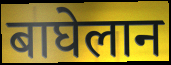
बाघेलान